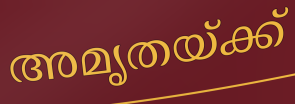
അമൃതയ്ക്ക്